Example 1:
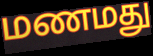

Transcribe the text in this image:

மணமது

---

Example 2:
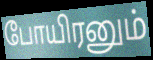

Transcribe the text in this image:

போயிரனும்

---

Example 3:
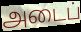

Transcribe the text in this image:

அடைப்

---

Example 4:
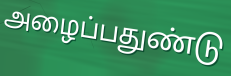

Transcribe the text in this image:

அழைப்பதுண்டு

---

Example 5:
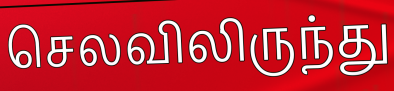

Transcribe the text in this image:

செலவிலிருந்து